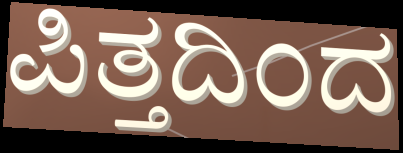
ಪಿತ್ತದಿಂದ